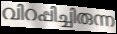
വിറപ്പിച്ചിരുന്ന